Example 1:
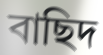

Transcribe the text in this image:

বাছিদ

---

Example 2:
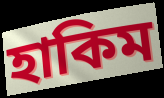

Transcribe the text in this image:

হাকিম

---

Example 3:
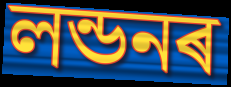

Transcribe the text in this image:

লন্ডনৰ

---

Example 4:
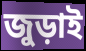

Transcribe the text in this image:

জুড়াই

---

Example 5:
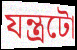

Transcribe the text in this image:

যন্ত্ৰটো